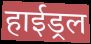
हाईड्रल